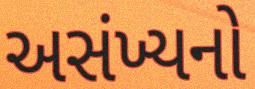
અસંખ્યનો